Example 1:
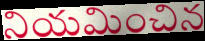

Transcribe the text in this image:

నియమించిన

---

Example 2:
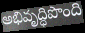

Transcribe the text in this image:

అభివృద్ధిపొంది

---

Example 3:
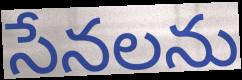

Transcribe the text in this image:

సేనలను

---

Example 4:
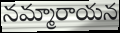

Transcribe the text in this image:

నమ్మారాయన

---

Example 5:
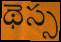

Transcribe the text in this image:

థెస్స